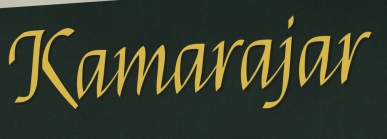
Kamarajar